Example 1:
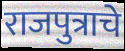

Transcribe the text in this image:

राजपुत्राचे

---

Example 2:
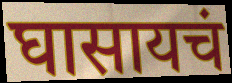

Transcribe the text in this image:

घासायचं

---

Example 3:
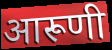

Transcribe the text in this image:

आरूणी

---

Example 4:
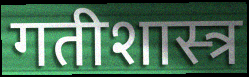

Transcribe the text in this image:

गतीशास्त्र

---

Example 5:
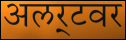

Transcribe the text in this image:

अलर्टवर